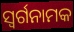
ସ୍ଵର୍ଗନାମକ